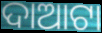
ଦାଆଟା